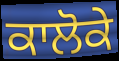
ਕਾਲੋਕੇ